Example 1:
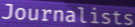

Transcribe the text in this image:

Journalists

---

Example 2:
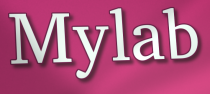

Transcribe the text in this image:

Mylab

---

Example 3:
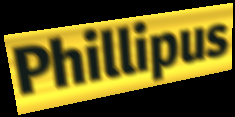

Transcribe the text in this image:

Phillipus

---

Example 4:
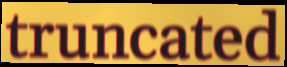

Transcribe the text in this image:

truncated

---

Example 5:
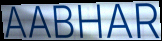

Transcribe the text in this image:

AABHAR